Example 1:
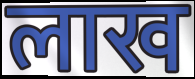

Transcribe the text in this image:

लाख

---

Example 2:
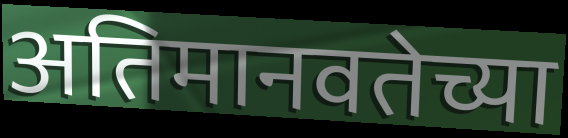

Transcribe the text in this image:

अतिमानवतेच्या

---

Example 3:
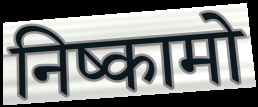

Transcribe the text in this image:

निष्कामो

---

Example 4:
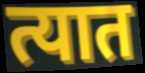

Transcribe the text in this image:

त्यात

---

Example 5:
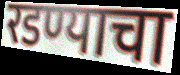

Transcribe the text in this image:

रडण्याचा